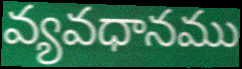
వ్యవధానము